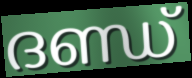
ദണ്ഡ്